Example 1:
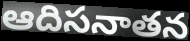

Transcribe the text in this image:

ఆదిసనాతన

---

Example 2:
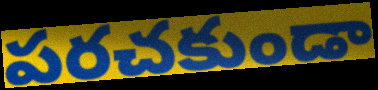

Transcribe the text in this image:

పరచకుండా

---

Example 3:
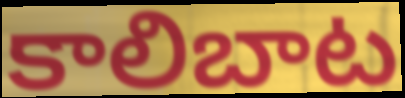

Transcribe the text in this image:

కాలిబాట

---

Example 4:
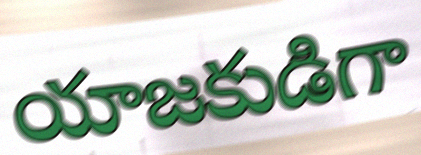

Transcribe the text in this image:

యాజకుడిగా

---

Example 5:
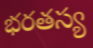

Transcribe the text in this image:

భరతస్య